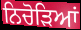
ਨਿਚੋੜਿਆਂ